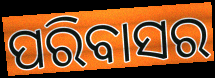
ପରିବାସର